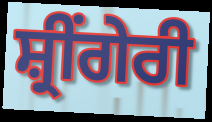
ਸ਼੍ਰੀਂਗੇਰੀ